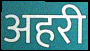
अहरी